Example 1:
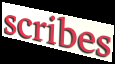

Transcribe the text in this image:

scribes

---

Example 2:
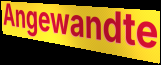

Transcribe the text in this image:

Angewandte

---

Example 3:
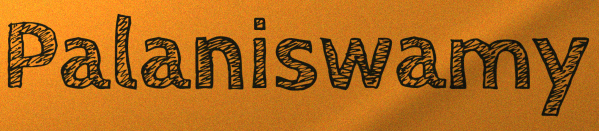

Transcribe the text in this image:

Palaniswamy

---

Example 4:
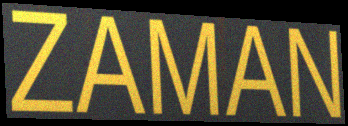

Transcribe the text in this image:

ZAMAN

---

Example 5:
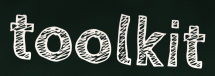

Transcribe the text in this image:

toolkit